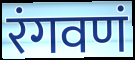
रंगवणं